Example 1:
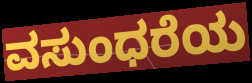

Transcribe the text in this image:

ವಸುಂಧರೆಯ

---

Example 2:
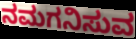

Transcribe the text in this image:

ನಮಗನಿಸುವ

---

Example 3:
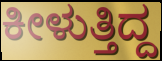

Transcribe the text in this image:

ಕೀಳುತ್ತಿದ್ದ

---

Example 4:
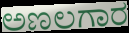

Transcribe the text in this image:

ಅಣಲಗಾರ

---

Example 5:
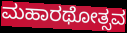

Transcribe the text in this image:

ಮಹಾರಥೋತ್ಸವ